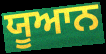
ਯੂਆਨ